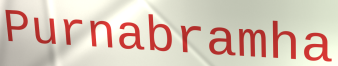
Purnabramha